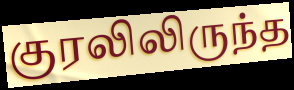
குரலிலிருந்த